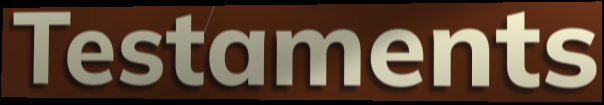
Testaments